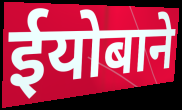
ईयोबाने